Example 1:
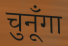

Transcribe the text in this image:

चुनूँगा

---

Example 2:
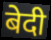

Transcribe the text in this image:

बेदी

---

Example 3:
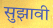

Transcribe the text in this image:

सुझावी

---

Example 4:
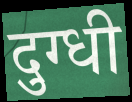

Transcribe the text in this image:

दुग्धी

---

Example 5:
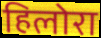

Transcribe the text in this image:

हिलोरा